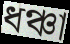
ধঞ্চা